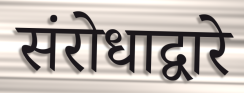
संरोधाद्वारे